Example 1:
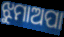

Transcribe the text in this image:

ଝୁମାଅପା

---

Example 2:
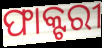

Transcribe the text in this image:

ଫାକ୍ଟରୀ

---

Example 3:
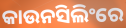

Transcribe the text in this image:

କାଉନସିଲିଂରେ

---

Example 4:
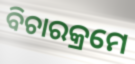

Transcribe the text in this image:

ବିଚାରକ୍ରମେ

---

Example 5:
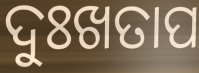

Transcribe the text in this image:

ଦୁଃଖତାପ